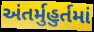
અંતર્મુહુર્તમાં